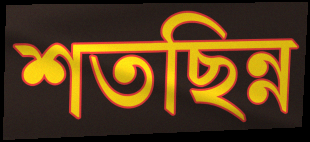
শতছিন্ন